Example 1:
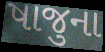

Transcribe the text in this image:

ષાજુના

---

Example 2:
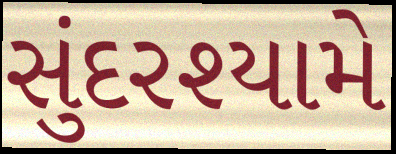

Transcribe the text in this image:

સુંદરશ્યામે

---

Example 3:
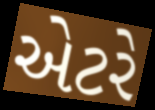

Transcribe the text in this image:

એટરે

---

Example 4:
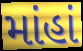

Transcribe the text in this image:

માંહાં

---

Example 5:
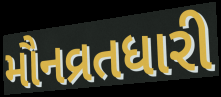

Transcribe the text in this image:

મૌનવ્રતધારી